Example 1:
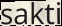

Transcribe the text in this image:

sakti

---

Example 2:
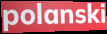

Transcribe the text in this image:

polanski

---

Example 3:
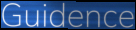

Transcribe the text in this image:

Guidence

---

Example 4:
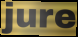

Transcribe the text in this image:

jure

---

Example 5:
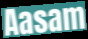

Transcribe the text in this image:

Aasam